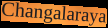
Changalaraya